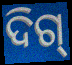
ଦିଗ୍